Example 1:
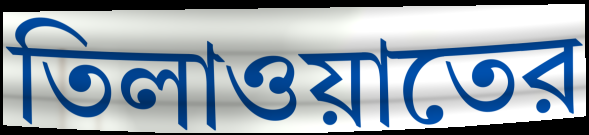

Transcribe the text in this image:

তিলাওয়াতের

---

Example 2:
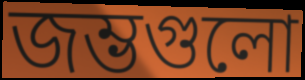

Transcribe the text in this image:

জম্ভগুলো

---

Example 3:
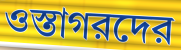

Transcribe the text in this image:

ওস্তাগরদের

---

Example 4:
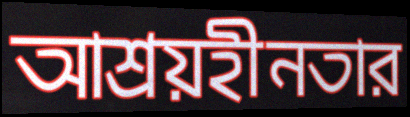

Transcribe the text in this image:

আশ্রয়হীনতার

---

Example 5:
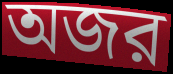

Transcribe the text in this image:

অজর